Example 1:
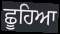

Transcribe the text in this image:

ਛੂਹਿਆ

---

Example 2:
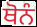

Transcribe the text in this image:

ਥੋਨੰ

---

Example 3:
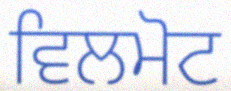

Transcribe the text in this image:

ਵਿਲਮੋਟ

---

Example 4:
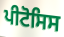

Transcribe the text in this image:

ਪੀਟੋਸਿਸ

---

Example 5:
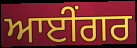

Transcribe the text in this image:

ਆਈਂਗਰ